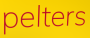
pelters